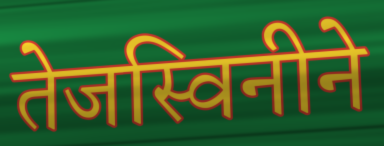
तेजस्विनीने